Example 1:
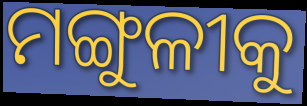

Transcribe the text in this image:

ମଙ୍ଗୁଳୀକୁ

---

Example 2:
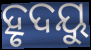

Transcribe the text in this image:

ହୃଦୟୁ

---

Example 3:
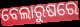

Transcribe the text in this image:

ବେଲାରୁଷରେ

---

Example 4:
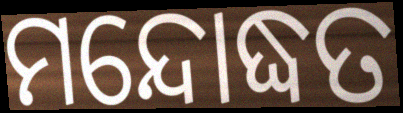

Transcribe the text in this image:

ମନ୍ଦୋଦ୍ଧତ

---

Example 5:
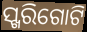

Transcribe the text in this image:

ସ୍ଖରିଗୋଟି